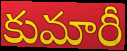
కుమారీ